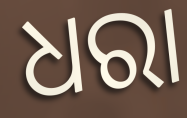
ଧରା